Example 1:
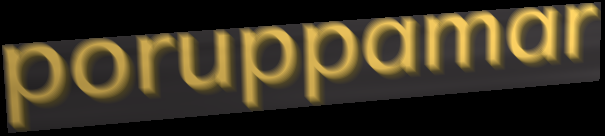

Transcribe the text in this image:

poruppamar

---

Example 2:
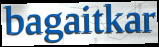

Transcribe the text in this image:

bagaitkar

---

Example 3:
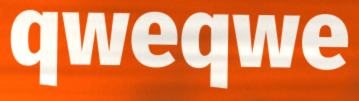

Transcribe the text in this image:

qweqwe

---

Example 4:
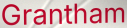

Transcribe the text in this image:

Grantham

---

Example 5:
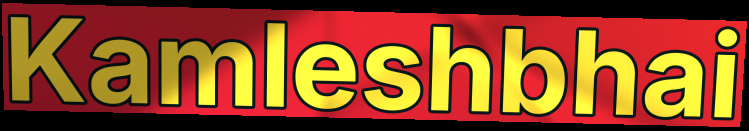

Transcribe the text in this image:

Kamleshbhai